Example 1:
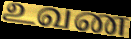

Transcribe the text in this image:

உவண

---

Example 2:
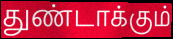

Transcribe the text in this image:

துண்டாக்கும்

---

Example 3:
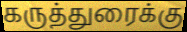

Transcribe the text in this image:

கருத்துரைக்கு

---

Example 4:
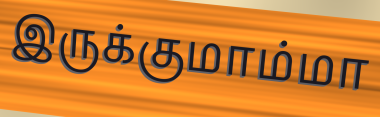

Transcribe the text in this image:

இருக்குமாம்மா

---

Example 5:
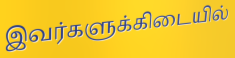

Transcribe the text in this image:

இவர்களுக்கிடையில்